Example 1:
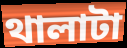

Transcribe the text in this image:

থালাটা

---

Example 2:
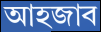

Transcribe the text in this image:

আহজাব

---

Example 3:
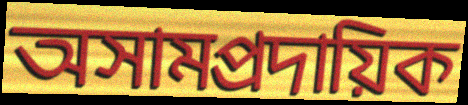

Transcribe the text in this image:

অসামপ্রদায়িক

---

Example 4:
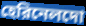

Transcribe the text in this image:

হেরিনেলদো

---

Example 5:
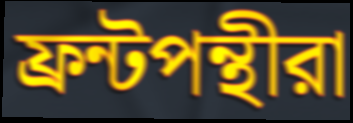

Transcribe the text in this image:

ফ্রন্টপন্থীরা